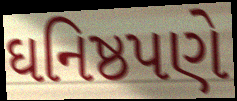
ઘનિષ્ઠપણે